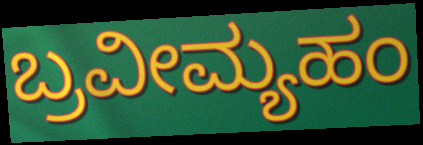
ಬ್ರವೀಮ್ಯಹಂ